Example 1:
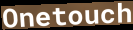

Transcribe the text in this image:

Onetouch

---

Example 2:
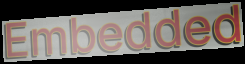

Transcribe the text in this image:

Embedded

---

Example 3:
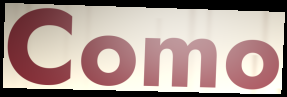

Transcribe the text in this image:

Como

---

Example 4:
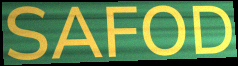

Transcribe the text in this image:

SAFOD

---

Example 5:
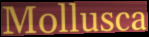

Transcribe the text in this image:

Mollusca